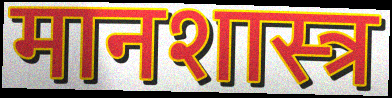
मानशास्त्र